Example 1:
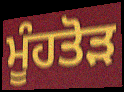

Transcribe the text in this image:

ਮੂੰਹਤੋੜ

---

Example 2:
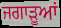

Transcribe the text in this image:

ਜਗਾੜੂਆਂ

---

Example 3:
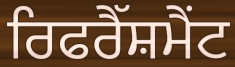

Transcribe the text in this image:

ਰਿਫਰੈੱਸ਼ਮੈਂਟ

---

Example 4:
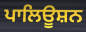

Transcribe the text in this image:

ਪਾਲਿਊਸ਼ਨ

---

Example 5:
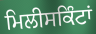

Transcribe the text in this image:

ਮਿਲੀਸਕਿੰਟਾਂ